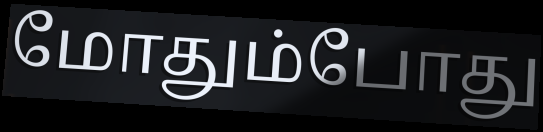
மோதும்போது